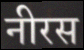
नीरस